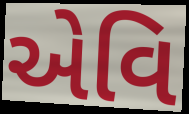
એવિ